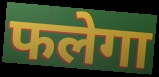
फलेगा